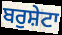
ਬਰੁਸ਼ੇਟਾ